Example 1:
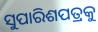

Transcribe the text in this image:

ସୁପାରିଶପତ୍ରକୁ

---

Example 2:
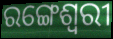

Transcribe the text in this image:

ରଙ୍ଗେଶ୍ୱରୀ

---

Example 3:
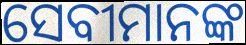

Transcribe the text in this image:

ସେବୀମାନଙ୍କ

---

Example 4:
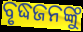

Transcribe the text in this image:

ବୃଦ୍ଧଜନଙ୍କୁ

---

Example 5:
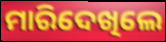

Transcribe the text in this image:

ମାରିଦେଖିଲେ